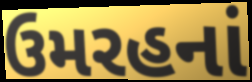
ઉમરહનાં